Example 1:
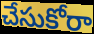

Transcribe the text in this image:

చేసుకోరా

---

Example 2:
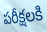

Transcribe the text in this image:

పరీక్షలకి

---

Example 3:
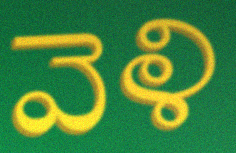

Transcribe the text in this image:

వెళి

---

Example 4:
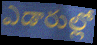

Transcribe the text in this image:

ఎడారుల్లో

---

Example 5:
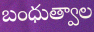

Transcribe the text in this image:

బంధుత్వాల